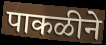
पाकळीने